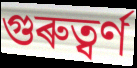
গুৰুত্ৱৰ্ণ